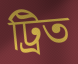
ট্ৰিত